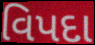
વિપદા